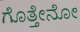
ಗೊತ್ತೇನೋ